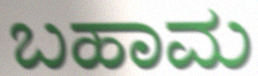
ಬಹಾಮ